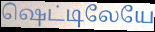
ஷெட்டிலேயே